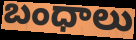
బంధాలు